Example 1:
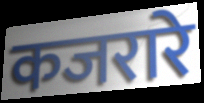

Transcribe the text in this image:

कजरारे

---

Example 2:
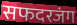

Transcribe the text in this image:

सफदरजंग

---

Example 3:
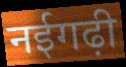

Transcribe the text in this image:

नईगढ़ी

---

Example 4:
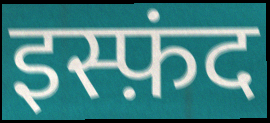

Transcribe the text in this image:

इस्फ़ंद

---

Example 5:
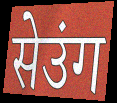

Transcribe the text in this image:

सेउंग